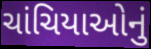
ચાંચિયાઓનું